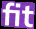
fit